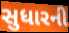
સુધારની